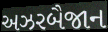
અઝરબૈજાન